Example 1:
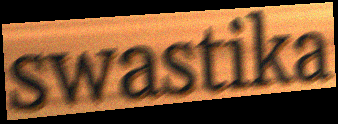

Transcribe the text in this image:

swastika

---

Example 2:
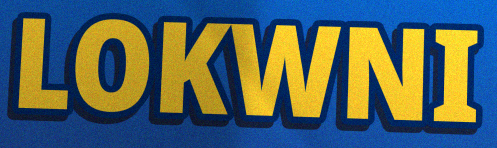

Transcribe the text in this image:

LOKWNI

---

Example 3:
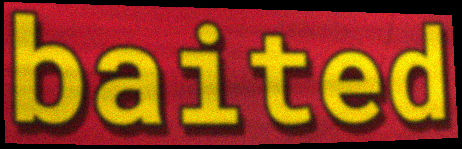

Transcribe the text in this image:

baited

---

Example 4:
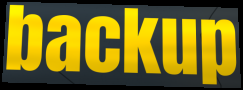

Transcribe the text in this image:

backup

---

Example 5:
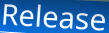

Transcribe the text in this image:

Release